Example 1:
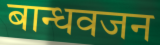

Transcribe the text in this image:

बान्धवजन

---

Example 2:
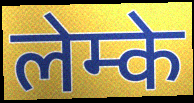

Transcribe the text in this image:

लेम्के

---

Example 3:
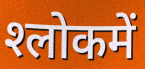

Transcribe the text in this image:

श्‍लोकमें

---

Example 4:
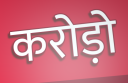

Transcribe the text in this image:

करोड़ो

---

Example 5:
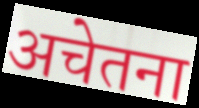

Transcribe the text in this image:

अचेतना